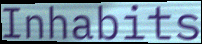
Inhabits